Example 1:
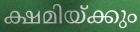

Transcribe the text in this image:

ക്ഷമിയ്ക്കും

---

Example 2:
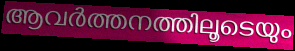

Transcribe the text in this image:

ആവർത്തനത്തിലൂടെയും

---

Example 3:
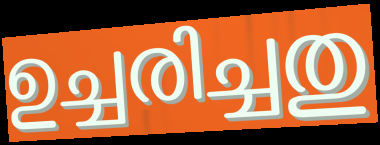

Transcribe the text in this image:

ഉച്ചരിച്ചതു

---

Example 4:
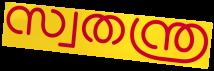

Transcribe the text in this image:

സ്വതന്ത്ര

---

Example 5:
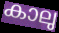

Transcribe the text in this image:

കാലു